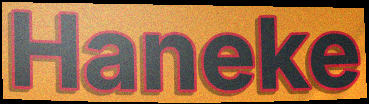
Haneke